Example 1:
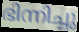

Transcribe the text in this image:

ഭിന്നിച്ചു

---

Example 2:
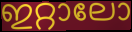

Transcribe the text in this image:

ഇറ്റാലോ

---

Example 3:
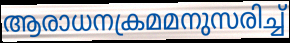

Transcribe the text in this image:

ആരാധനക്രമമനുസരിച്ച്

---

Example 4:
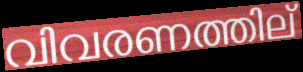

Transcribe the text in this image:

വിവരണത്തില്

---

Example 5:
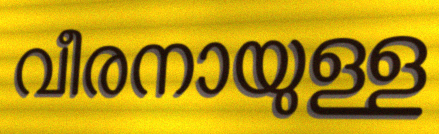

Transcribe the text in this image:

വീരനായുള്ള